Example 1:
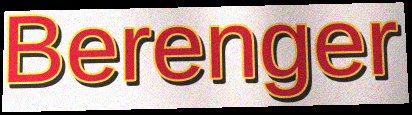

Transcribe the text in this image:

Berenger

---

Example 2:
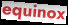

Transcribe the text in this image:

equinox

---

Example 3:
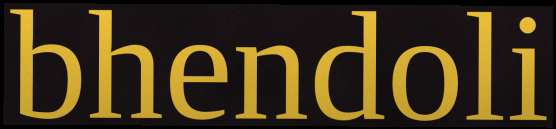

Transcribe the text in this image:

bhendoli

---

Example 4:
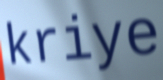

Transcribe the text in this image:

kriye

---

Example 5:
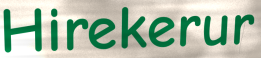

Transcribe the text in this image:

Hirekerur